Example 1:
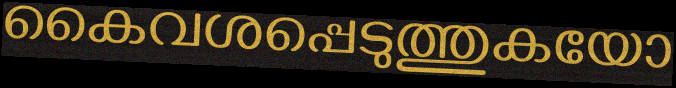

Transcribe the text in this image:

കൈവശപ്പെടുത്തുകയോ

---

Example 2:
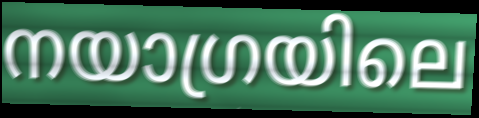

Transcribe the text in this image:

നയാഗ്രയിലെ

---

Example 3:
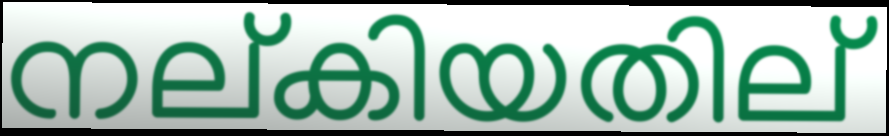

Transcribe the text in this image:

നല്കിയതില്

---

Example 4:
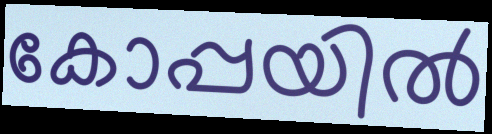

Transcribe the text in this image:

കോപ്പയിൽ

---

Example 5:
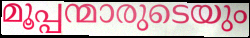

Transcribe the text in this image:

മൂപ്പന്മാരുടെയും